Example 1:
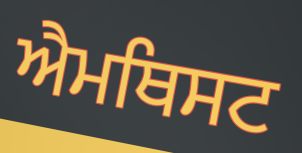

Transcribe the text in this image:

ਐਮਥਿਸਟ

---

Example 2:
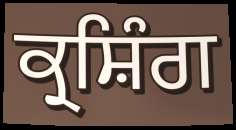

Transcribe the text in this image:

ਕ੍ਰਸ਼ਿੰਗ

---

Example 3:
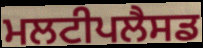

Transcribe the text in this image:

ਮਲਟੀਪਲੈਸਡ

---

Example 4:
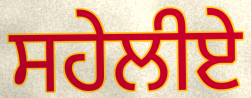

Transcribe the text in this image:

ਸਹੇਲੀਏ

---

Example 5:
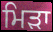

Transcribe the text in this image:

ਮਿੜਾ